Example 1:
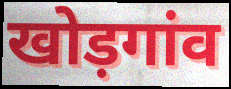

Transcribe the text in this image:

खोड़गांव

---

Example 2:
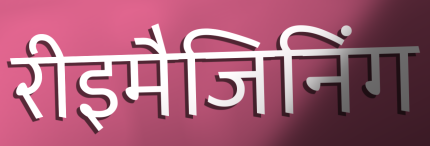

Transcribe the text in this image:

रीइमैजिनिंग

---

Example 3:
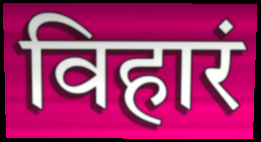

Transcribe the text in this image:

विहारं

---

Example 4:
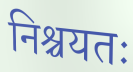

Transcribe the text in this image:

निश्चयतः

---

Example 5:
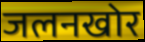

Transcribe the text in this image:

जलनखोर